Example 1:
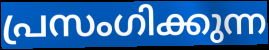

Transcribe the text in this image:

പ്രസംഗിക്കുന്ന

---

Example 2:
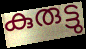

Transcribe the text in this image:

കുരുട്ടു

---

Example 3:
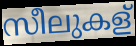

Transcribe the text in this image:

സീലുകള്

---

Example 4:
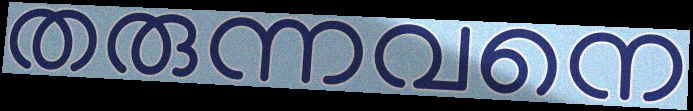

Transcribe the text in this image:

തരുന്നവനെ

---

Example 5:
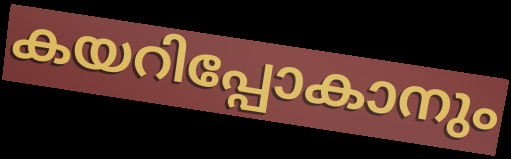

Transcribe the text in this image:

കയറിപ്പോകാനും